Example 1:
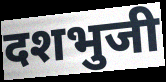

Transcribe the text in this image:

दशभुजी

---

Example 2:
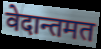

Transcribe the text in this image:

वेदान्तमत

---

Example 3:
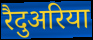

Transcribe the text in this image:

रैदुअरिया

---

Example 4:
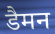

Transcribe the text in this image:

डैमन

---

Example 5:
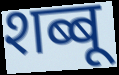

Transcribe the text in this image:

शब्बू